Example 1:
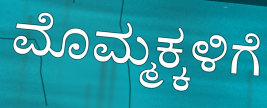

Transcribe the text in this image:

ಮೊಮ್ಮಕ್ಕಳಿಗೆ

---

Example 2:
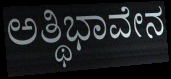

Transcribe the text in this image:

ಅತ್ಥಿಭಾವೇನ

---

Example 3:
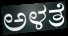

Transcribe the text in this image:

ಅಳತೆ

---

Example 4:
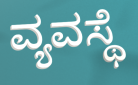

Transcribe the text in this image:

ವ್ಯವಸ್ಥೆ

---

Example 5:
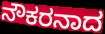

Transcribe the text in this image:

ನೌಕರನಾದ